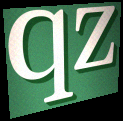
qz